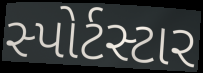
સ્પોર્ટસ્ટાર